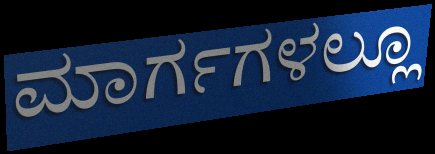
ಮಾರ್ಗಗಳಲ್ಲೂ